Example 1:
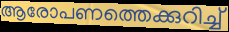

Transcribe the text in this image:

ആരോപണത്തെക്കുറിച്ച്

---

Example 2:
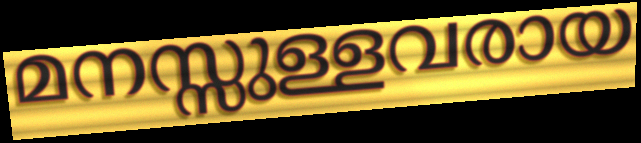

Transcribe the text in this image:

മനസ്സുള്ളവരായ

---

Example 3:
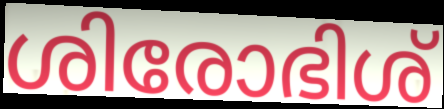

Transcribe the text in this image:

ശിരോഭിശ്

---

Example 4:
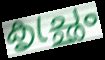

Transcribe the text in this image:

കൃച്ഛ്രം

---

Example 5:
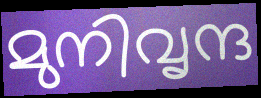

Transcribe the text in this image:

മുനിവൃന്ദ